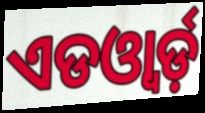
ଏଡଓ୍ବାର୍ଡ଼